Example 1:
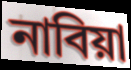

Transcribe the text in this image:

নাবিয়া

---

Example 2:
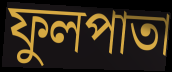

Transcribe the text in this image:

ফুলপাতা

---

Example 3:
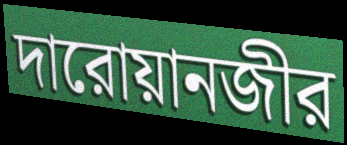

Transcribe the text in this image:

দারোয়ানজীর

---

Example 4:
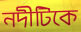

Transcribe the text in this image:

নদীটিকে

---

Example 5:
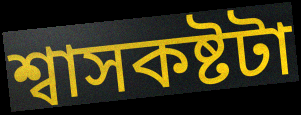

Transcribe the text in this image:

শ্বাসকষ্টটা